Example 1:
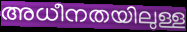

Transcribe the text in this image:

അധീനതയിലുള്ള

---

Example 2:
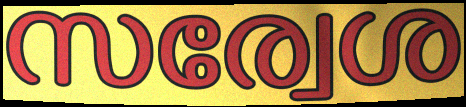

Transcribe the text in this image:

സര്വേശ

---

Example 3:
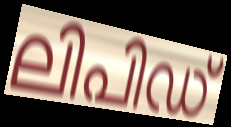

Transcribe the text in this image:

ലിപിഡ്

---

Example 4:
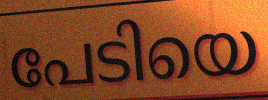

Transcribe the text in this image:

പേടിയെ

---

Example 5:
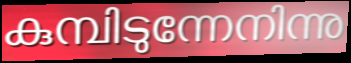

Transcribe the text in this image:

കുമ്പിടുന്നേനിന്നു